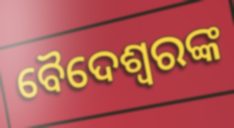
ବୈଦେଶ୍ୱରଙ୍କ